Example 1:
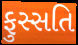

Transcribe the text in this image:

ફુસ્સતિ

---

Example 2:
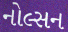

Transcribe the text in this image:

નોલ્સન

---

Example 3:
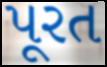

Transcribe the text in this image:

પૂરત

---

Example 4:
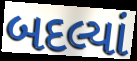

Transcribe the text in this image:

બદલ્યાં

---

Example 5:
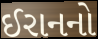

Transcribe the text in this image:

ઈરાનનો